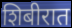
शिबीरात